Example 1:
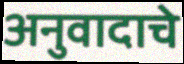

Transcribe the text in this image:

अनुवादाचे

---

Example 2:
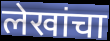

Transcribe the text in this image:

लेखांचा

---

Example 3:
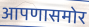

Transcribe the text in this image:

आपणासमोर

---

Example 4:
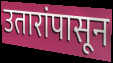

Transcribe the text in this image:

उतारांपासून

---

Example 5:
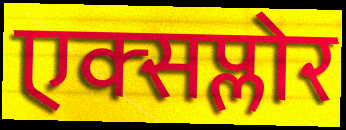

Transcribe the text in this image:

एक्‍सप्लोर